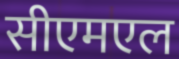
सीएमएल